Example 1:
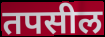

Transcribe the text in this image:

तपसील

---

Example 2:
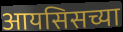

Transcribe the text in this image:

आयसिसच्या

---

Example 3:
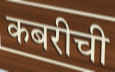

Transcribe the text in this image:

कबरीची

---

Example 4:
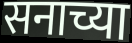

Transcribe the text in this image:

सनाच्या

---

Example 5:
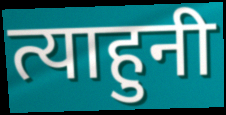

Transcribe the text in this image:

त्याहुनी